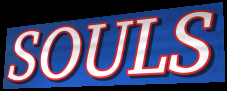
SOULS